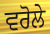
ਵਰੋਲੇ